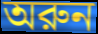
অরুন